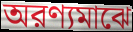
অরণ্যমাঝে